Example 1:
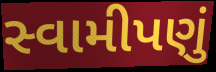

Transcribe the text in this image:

સ્વામીપણું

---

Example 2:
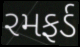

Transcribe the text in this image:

રમફર્ડ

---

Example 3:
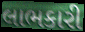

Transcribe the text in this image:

લાભકારી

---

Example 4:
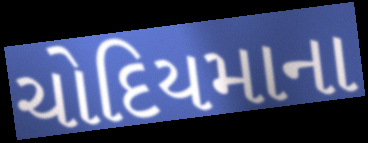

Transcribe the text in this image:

ચોદિયમાના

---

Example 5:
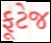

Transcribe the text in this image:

ફૂટેજ